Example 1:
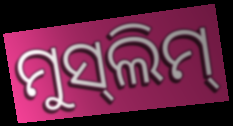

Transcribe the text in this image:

ମୁସ୍‌ଲିମ୍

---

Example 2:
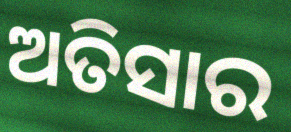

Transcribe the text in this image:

ଅତିସାର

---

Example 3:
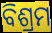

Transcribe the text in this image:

ବିଶ୍ରମ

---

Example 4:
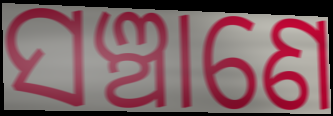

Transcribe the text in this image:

ସଞ୍ଚାଣେ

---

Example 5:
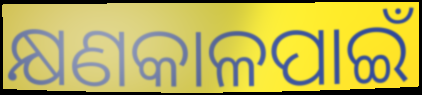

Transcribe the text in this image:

କ୍ଷଣକାଳପାଇଁ